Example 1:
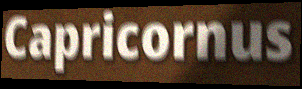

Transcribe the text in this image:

Capricornus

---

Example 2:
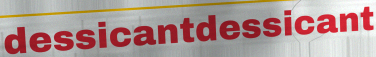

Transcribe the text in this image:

dessicantdessicant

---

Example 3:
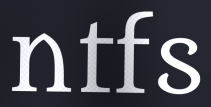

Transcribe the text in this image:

ntfs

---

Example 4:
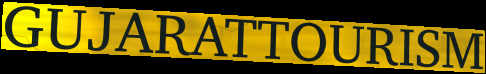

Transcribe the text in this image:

GUJARATTOURISM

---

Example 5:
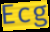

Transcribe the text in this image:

Ecg